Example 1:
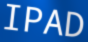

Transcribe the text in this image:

IPAD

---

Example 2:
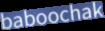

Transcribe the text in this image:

baboochak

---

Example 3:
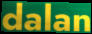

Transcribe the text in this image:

dalan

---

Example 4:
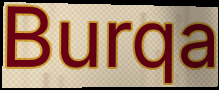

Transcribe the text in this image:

Burqa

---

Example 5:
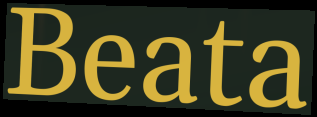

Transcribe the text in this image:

Beata